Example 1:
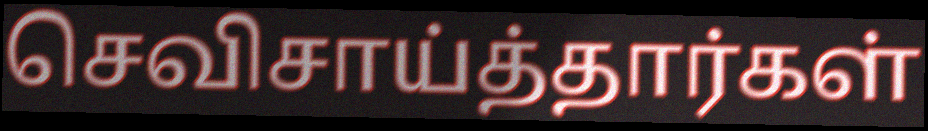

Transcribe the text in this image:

செவிசாய்த்தார்கள்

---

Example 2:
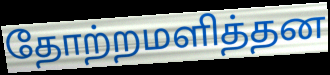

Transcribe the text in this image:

தோற்றமளித்தன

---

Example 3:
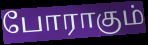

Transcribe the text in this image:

போராகும்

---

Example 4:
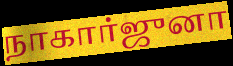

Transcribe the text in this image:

நாகார்ஜுனா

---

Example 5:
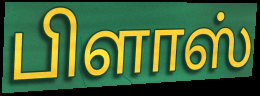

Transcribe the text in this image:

பிளாஸ்